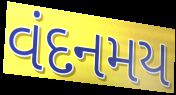
વંદનમય